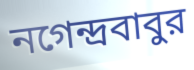
নগেন্দ্রবাবুর